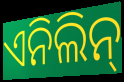
ଏନିଲିନ୍